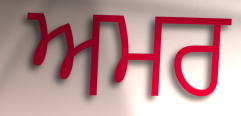
ਅਮਰ